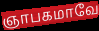
ஞாபகமாவே